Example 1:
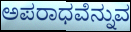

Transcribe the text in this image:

ಅಪರಾಧವೆನ್ನುವ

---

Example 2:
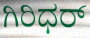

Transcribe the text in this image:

ಗಿರಿಧರ್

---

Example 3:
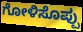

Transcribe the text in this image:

ಗೋಳಿಸೊಪ್ಪು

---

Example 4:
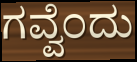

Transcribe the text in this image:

ಗವ್ವೆಂದು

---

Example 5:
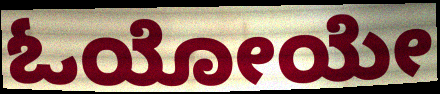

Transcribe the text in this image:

ಓಯೋಯೇ